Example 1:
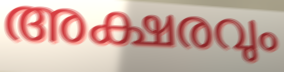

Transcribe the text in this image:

അക്ഷരവും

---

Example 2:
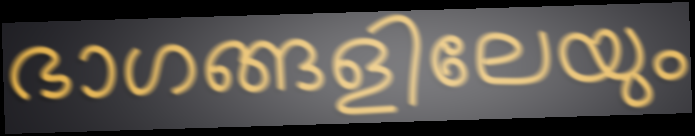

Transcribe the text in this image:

ഭാഗങ്ങളിലേയും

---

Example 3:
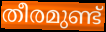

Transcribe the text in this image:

തീരമുണ്ട്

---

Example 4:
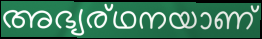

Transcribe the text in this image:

അഭ്യര്ഥനയാണ്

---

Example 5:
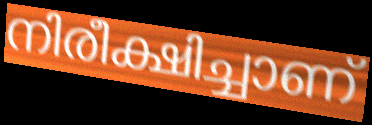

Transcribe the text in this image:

നിരീക്ഷിച്ചാണ്